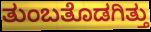
ತುಂಬತೊಡಗಿತ್ತು